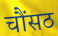
चौंसठ